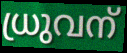
ധ്രുവന്